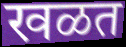
खळत